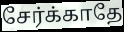
சேர்க்காதே